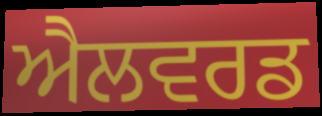
ਐਲਵਰਡ